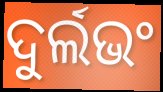
ଦୁର୍ଲଭଂ